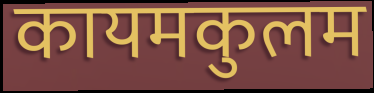
कायमकुलम